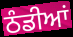
ਠੰਡੀਆਂ